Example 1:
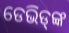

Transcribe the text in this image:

ଡେଭିଡ୍‌ଙ୍କ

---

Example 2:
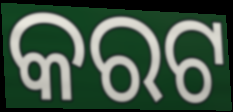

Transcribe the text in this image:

କରଟ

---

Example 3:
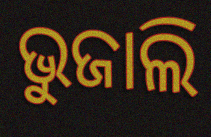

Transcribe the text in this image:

ଭୁଜାଲି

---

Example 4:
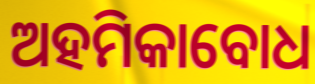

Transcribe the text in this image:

ଅହମିକାବୋଧ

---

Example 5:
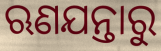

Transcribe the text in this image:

ଋଣଯନ୍ତାରୁ